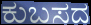
ಕುಬಸದ